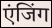
एंजिंग